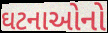
ઘટનાઓનો